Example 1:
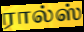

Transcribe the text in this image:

ரால்ஸ்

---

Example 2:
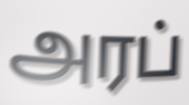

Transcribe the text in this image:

அரப்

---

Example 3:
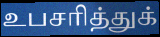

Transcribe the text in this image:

உபசரித்துக்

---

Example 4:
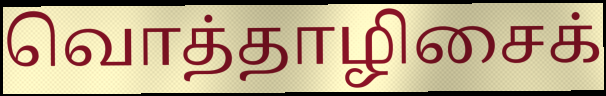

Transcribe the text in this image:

வொத்தாழிசைக்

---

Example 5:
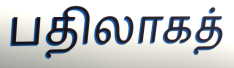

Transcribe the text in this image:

பதிலாகத்